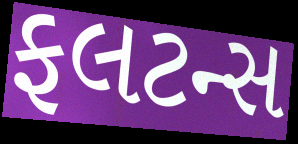
ફલટન્સ